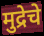
मुद्रेचे